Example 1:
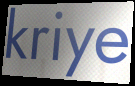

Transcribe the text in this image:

kriye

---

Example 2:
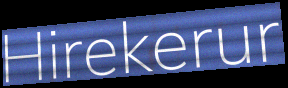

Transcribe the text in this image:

Hirekerur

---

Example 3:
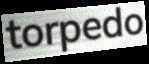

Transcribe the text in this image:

torpedo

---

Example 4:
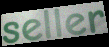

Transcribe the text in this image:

seller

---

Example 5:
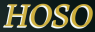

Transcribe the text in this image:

HOSO